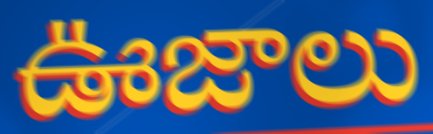
ఊజాలు